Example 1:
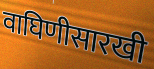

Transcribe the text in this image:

वाघिणीसारखी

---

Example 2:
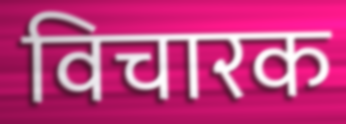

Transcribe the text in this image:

विचारक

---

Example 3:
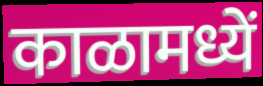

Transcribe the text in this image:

काळामध्यें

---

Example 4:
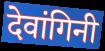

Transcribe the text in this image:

देवांगिनी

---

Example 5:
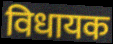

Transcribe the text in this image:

विधायक